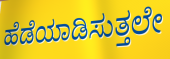
ಹೆಡೆಯಾಡಿಸುತ್ತಲೇ